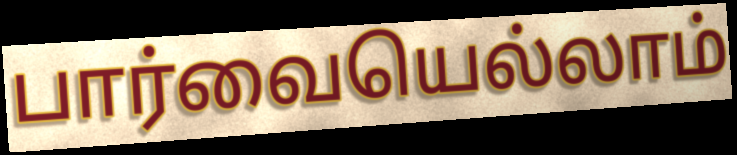
பார்வையெல்லாம்